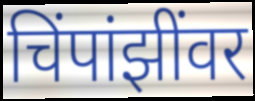
चिंपांझींवर